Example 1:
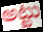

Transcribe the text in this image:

అట్టు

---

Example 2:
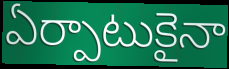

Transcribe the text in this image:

ఏర్పాటుకైనా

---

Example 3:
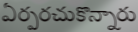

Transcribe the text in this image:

ఏర్పరచుకొన్నారు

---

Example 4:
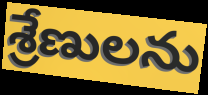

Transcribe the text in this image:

శ్రేణులను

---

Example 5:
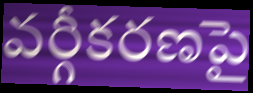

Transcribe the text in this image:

వర్గీకరణపై